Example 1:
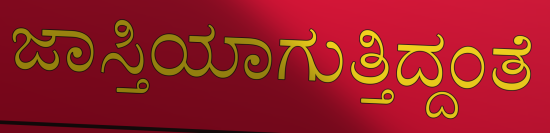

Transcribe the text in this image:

ಜಾಸ್ತಿಯಾಗುತ್ತಿದ್ದಂತೆ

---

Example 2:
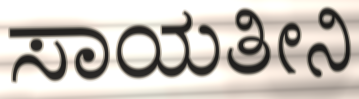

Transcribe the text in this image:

ಸಾಯತೀನಿ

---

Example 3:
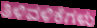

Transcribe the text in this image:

ತಿಳಿವಳಿಕೆಗಳು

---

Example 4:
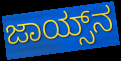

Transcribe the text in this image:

ಜಾಯ್ಸ್‌ನ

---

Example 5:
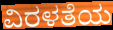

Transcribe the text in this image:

ವಿರಳತೆಯ